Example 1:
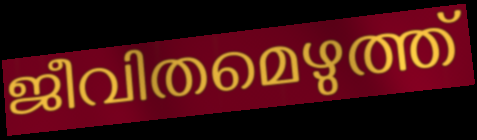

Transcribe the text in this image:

ജീവിതമെഴുത്ത്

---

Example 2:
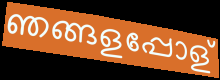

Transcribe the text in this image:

ഞങ്ങളപ്പോള്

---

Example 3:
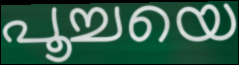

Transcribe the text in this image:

പൂച്ചയെ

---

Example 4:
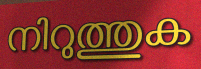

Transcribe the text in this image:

നിറുത്തുക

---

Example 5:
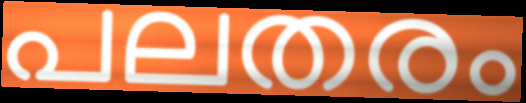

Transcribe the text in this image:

പലതരം